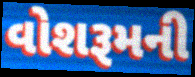
વોશરૂમની